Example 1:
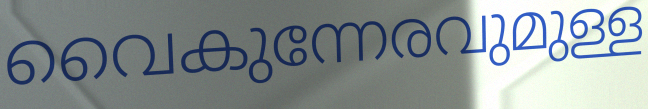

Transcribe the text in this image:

വൈകുന്നേരവുമുള്ള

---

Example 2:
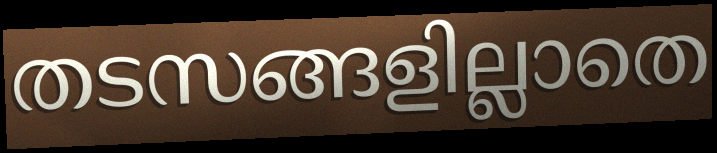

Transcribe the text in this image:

തടസങ്ങളില്ലാതെ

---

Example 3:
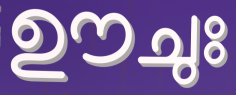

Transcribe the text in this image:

ഊചുഃ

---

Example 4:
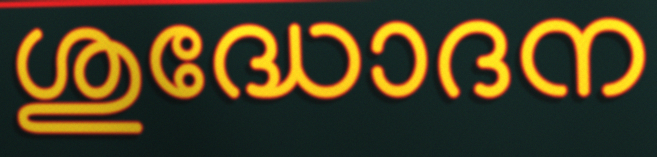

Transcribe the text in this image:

ശുദ്ധോദന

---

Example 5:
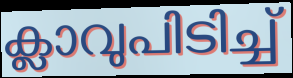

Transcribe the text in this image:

ക്ലാവുപിടിച്ച്